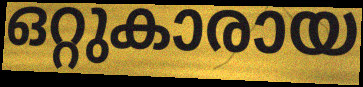
ഒറ്റുകാരായ